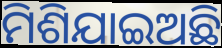
ମିଶିଯାଇଅଛି